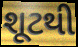
શૂટથી